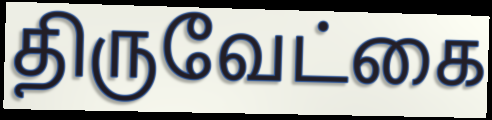
திருவேட்கை